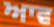
ਆਵ